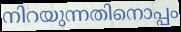
നിറയുന്നതിനൊപ്പം